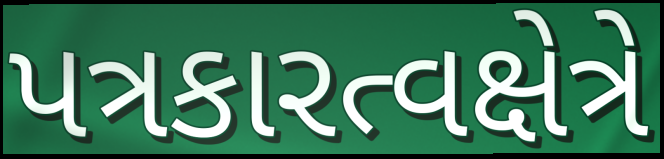
પત્રકારત્વક્ષેત્રે